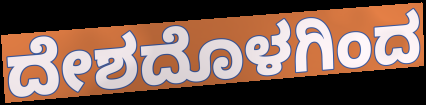
ದೇಶದೊಳಗಿಂದ